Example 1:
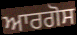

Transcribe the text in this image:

ਆਰਗੋਸ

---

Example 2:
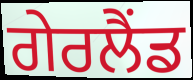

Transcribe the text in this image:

ਗੇਰਲੈਂਡ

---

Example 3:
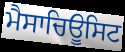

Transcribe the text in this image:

ਮੈਸਾਚਿਊਸਿਟ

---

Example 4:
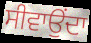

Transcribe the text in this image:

ਸੀਵਾਉਂਦਾ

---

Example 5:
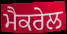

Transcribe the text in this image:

ਮੈਕਰੇਲ